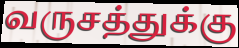
வருசத்துக்கு